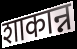
शाकान्न